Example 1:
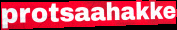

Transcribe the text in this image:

protsaahakke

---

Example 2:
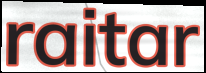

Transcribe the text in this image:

raitar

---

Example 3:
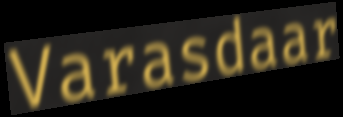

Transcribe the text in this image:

Varasdaar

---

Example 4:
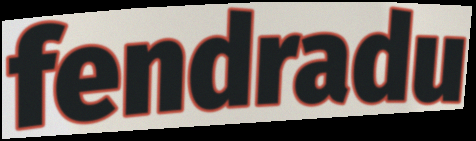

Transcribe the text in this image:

fendradu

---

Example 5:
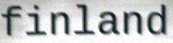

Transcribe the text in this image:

finland